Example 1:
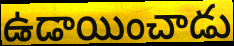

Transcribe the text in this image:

ఉడాయించాడు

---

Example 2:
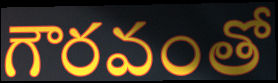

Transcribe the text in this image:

గౌరవంతో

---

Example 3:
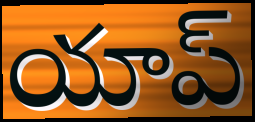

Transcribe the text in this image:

యాప్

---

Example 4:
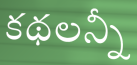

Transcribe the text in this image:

కథలన్నీ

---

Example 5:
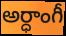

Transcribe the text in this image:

అర్ధాంగీ